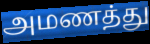
அமணத்து